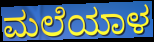
ಮಲೆಯಾಳ